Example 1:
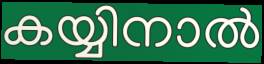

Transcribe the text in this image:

കയ്യിനാൽ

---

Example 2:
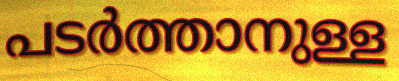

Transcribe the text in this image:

പടർത്താനുള്ള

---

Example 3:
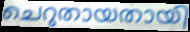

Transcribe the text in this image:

ചെറുതായതായി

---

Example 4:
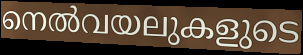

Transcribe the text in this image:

നെൽവയലുകളുടെ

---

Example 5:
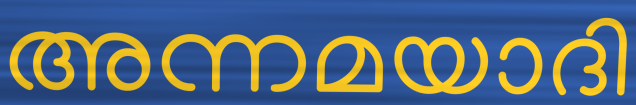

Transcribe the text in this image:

അന്നമയാദി